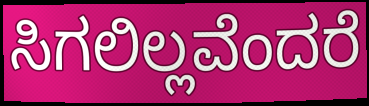
ಸಿಗಲಿಲ್ಲವೆಂದರೆ